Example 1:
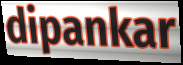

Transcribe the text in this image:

dipankar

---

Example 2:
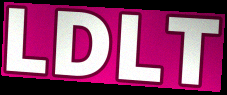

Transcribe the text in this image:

LDLT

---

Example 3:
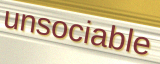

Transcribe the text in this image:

unsociable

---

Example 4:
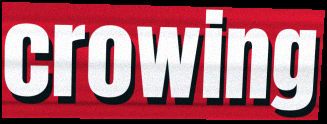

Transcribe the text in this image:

crowing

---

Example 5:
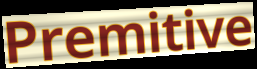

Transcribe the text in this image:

Premitive